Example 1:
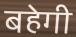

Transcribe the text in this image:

बहेगी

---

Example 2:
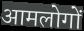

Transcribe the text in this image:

आमलोगों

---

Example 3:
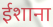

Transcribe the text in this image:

ईशाना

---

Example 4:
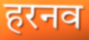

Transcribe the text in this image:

हरनव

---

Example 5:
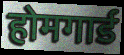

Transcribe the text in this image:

होमगार्ड